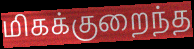
மிகக்குறைந்த